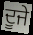
ਦੂਜੇ